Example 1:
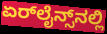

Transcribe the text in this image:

ಏರ್‌ಲೈನ್ಸ್‌ನಲ್ಲಿ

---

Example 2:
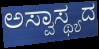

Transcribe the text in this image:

ಅಸ್ವಾಸ್ಥ್ಯದ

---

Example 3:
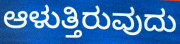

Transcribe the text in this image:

ಆಳುತ್ತಿರುವುದು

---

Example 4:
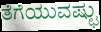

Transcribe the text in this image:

ತೆಗೆಯುವಷ್ಟು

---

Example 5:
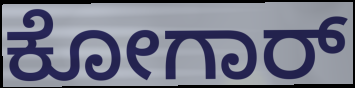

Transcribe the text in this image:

ಕೋಗಾರ್